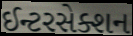
ઈન્ટરસેક્શન